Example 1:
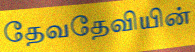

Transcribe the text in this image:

தேவதேவியின்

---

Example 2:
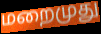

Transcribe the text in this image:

மறைமுது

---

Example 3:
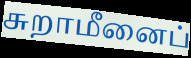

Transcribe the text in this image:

சுறாமீனைப்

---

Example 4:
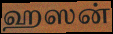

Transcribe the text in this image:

ஹஸன்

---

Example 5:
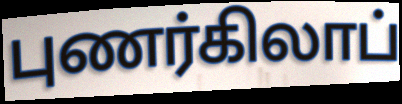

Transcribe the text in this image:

புணர்கிலாப்